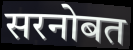
सरनोबत